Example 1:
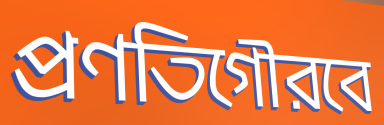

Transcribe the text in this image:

প্রণতিগৌরবে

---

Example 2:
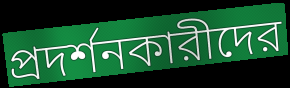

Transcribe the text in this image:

প্রদর্শনকারীদের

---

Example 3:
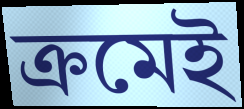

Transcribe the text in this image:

ক্রমেই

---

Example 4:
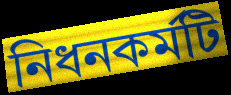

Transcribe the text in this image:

নিধনকর্মটি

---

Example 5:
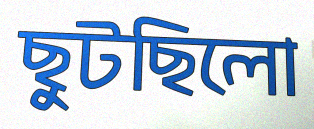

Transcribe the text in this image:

ছুটছিলো